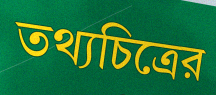
তথ্যচিত্রের